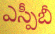
ఎస్పీబీ